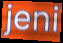
jeni